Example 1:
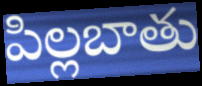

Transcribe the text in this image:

పిల్లబాతు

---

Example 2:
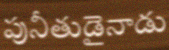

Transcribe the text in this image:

పునీతుడైనాడు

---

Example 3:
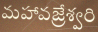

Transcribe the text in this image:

మహావజ్రేశ్వరి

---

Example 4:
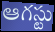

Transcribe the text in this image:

ఆగస్టు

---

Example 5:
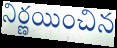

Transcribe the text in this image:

నిర్ణయించిన